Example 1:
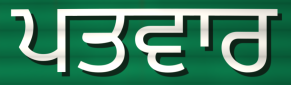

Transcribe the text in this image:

ਪਤਵਾਰ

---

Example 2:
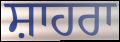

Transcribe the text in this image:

ਸ਼ਾਹਰਾ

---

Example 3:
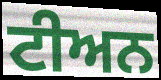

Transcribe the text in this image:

ਟੀਅਨ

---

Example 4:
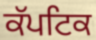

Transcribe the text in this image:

ਕੱਪਟਿਕ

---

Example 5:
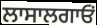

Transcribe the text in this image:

ਲਾਸਾਲਗਾਓਂ